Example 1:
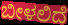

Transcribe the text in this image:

ಬೀಳಲಿದೆ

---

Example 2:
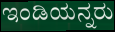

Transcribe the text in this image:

ಇಂಡಿಯನ್ನರು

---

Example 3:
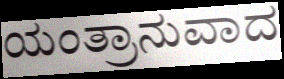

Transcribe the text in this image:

ಯಂತ್ರಾನುವಾದ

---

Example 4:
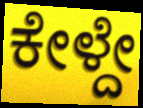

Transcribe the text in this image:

ಕೇಳ್ದೇ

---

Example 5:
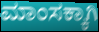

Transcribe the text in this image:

ಮಾಂಸಕ್ಕಾಗಿ